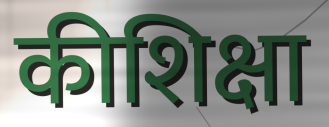
कीशिक्षा